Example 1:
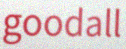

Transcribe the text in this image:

goodall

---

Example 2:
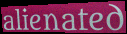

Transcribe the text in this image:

alienated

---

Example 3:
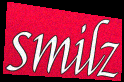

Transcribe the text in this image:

smilz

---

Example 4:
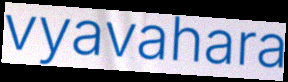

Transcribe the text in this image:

vyavahara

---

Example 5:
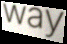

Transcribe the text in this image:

way